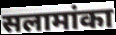
सलामांका